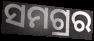
ସମଗ୍ରର